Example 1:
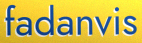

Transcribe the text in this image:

fadanvis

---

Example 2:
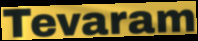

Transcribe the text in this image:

Tevaram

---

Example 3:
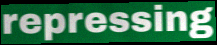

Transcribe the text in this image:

repressing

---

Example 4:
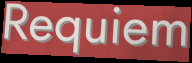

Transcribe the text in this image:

Requiem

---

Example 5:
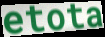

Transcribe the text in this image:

etota